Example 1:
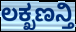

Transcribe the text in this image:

ಲಕ್ಖಣನ್ತಿ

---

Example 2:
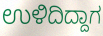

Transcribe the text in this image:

ಉಳಿದಿದ್ದಾಗ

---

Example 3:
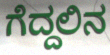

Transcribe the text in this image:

ಗೆದ್ದಲಿನ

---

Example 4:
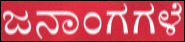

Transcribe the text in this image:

ಜನಾಂಗಗಳೆ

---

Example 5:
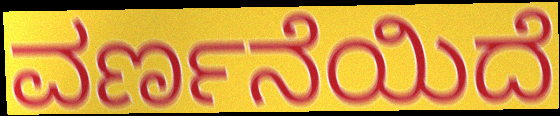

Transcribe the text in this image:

ವರ್ಣನೆಯಿದೆ